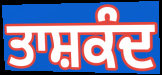
ਤਾਸ਼ਕੰਦ